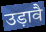
उड़ावै